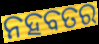
ନହବତର